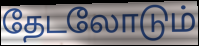
தேடலோடும்